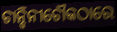
ଚାନ୍ଦିନୀଚୌକଠାରେ